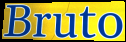
Bruto